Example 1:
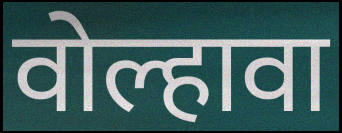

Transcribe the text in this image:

वोल्हावा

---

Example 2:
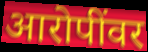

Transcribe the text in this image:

आरोपींवर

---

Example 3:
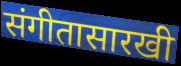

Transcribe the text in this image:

संगीतासारखी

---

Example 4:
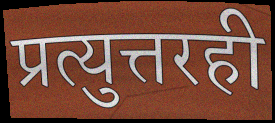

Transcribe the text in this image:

प्रत्युत्तरही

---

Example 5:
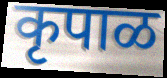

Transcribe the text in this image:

कृपाळ